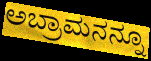
ಅಬ್ರಾಮನನ್ನೂ